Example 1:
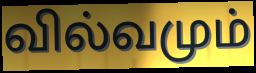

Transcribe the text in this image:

வில்வமும்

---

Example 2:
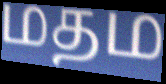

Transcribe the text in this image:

மதம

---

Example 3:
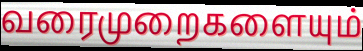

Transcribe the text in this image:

வரைமுறைகளையும்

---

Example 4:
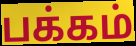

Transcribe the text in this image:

பக்கம்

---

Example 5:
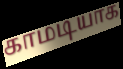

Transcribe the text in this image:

காமடியாக